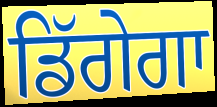
ਡਿੱਗੇਗਾ